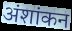
अंशांकन